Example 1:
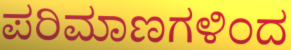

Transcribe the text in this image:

ಪರಿಮಾಣಗಳಿಂದ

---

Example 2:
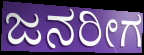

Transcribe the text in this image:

ಜನರೀಗ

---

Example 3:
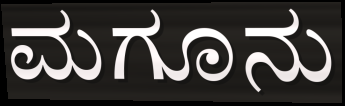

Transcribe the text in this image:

ಮಗೂನು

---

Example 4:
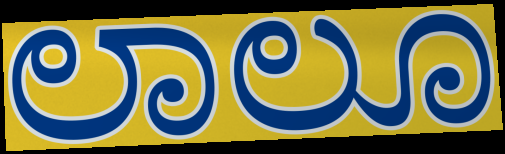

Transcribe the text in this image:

ಲಾಲೂ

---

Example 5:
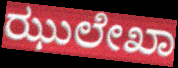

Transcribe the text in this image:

ಝುಲೇಖಾ